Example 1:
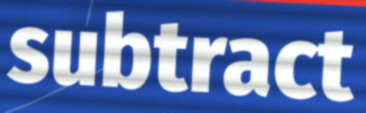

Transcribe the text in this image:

subtract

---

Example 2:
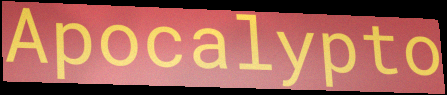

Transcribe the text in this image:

Apocalypto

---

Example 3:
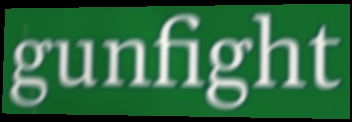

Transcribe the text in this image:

gunfight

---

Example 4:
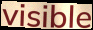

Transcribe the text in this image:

visible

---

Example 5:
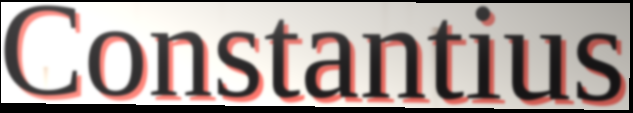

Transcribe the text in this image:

Constantius